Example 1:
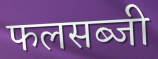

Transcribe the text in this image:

फलसब्जी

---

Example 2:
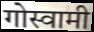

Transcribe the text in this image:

गोस्वामी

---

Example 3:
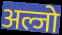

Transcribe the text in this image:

अल्जो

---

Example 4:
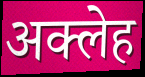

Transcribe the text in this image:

अक्लेह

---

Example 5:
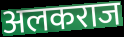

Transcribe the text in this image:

अलकराज